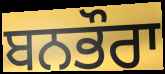
ਬਨਭੌਰਾ